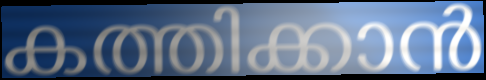
കത്തിക്കാൻ